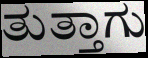
ತುತ್ತಾಗು